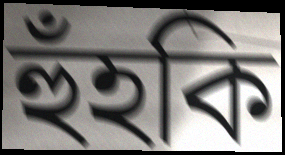
হুঁহকি